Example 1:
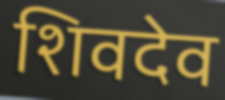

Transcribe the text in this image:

शिवदेव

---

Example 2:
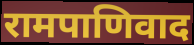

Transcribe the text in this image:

रामपाणिवाद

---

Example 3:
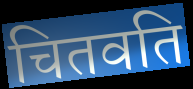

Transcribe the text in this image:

चितवति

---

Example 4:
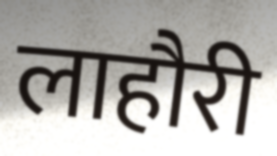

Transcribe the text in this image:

लाहौरी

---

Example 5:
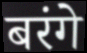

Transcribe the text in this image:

बरंगे